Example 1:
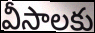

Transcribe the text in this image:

వీసాలకు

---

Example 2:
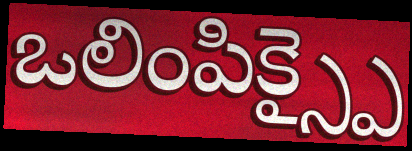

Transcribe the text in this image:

ఒలింపిక్స్పై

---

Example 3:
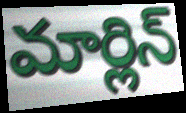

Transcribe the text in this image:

మార్లిన్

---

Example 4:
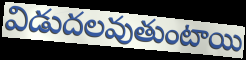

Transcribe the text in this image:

విడుదలవుతుంటాయి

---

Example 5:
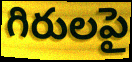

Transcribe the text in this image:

గిరులపై